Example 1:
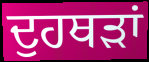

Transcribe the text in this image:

ਦੁਹਥੜਾਂ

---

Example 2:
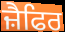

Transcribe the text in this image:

ਜ਼ੈਫਿਰ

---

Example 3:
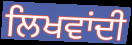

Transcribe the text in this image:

ਲਿਖਵਾਂਦੀ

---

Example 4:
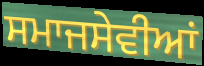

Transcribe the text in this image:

ਸਮਾਜਸੇਵੀਆਂ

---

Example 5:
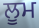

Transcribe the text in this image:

ਲੂਮ